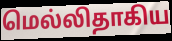
மெல்லிதாகிய